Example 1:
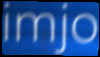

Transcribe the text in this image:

imjo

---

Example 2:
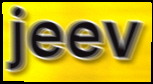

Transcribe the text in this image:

jeev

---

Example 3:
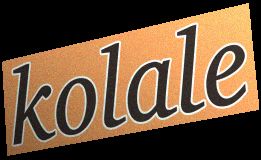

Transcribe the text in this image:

kolale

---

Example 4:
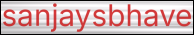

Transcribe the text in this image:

sanjaysbhave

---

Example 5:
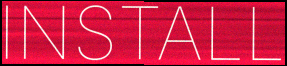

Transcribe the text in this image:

INSTALL